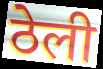
ठेली